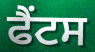
ਫੈਂਟਸ